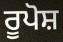
ਰੂਪੋਸ਼